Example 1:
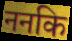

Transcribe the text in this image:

ननकि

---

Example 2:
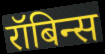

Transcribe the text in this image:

रॉबिन्स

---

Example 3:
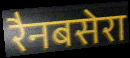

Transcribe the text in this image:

रैनबसेरा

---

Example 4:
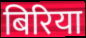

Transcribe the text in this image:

बिरिया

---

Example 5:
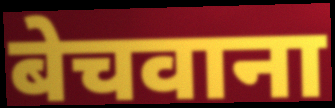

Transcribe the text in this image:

बेचवाना